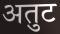
अतुट